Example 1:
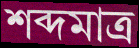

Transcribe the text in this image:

শব্দমাত্র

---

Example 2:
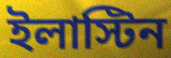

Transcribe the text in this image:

ইলাস্টিন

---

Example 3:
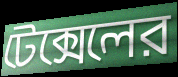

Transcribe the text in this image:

টেক্সেলের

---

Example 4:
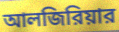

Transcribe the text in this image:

আলজিরিয়ার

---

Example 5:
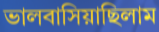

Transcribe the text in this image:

ভালবাসিয়াছিলাম